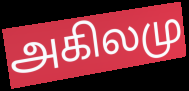
அகிலமு